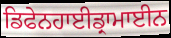
ਡਿਫੇਨਹਾਈਡ੍ਰਾਮਾਈਨ